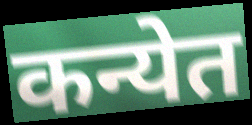
कन्येत